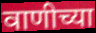
वाणीच्या